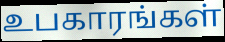
உபகாரங்கள்